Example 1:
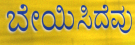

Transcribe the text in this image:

ಬೇಯಿಸಿದೆವು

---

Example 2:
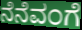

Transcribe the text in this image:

ನೆನೆವಂಗೆ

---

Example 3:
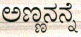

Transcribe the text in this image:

ಅಣ್ಣನನ್ನೆ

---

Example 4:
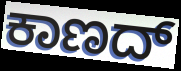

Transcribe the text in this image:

ಕಾಣದ್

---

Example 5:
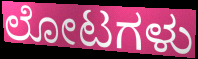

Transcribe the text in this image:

ಲೋಟಗಳು